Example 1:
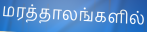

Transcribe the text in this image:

மரத்தாலங்களில்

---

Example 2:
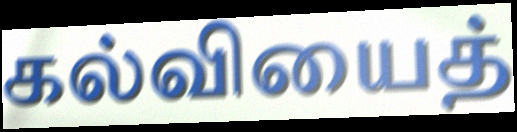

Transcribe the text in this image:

கல்வியைத்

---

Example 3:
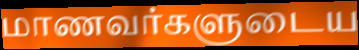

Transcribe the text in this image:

மாணவர்களுடைய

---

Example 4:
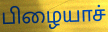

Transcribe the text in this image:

பிழையாச்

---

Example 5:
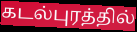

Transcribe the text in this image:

கடல்புரத்தில்